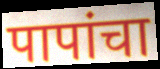
पापांचा